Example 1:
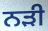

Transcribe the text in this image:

ਨੜੀ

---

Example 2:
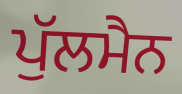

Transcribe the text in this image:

ਪੁੱਲਮੈਨ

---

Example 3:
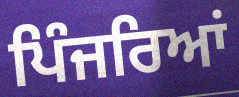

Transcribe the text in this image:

ਪਿੰਜਰਿਆਂ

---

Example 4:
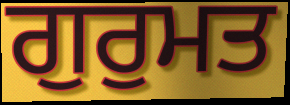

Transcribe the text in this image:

ਗੁਰੁਮਤ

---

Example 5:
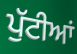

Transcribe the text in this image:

ਪੁੱਟੀਆਂ